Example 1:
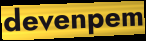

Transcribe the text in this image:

devenpem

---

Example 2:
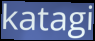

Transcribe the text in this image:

katagi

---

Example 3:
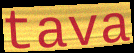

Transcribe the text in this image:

tava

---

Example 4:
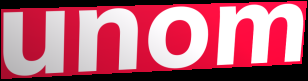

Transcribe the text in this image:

unom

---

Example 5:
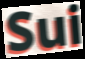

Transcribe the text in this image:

Sui